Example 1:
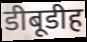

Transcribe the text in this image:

डीबूडीह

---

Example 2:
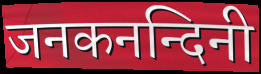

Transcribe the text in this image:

जनकनन्दिनी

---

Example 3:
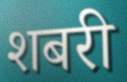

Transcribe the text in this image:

शबरी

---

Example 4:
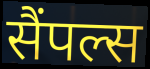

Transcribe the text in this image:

सैंपल्स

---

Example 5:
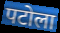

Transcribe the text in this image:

पटोला